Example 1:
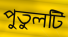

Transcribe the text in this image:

পুতুলটি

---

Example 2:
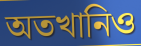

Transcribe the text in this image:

অতখানিও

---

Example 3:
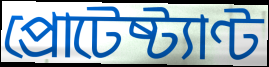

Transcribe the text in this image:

প্রোটেষ্ট্যাণ্ট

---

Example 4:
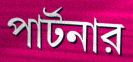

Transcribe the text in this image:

পার্টনার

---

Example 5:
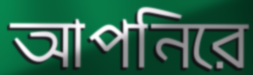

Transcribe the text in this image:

আপনিরে